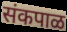
संकपाळ